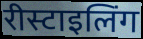
रीस्टाइलिंग